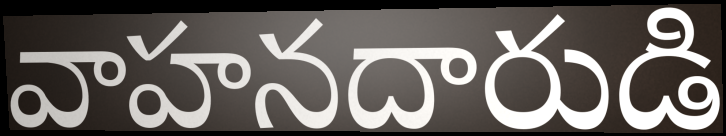
వాహనదారుడి